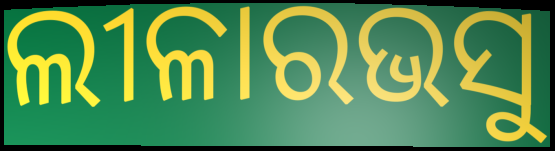
ଲୀଳାରଭସୁ